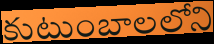
కుటుంబాలలోని